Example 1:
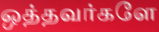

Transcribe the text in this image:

ஒத்தவர்களே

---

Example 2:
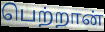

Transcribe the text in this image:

பெற்றான்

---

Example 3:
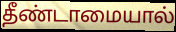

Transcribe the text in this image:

தீண்டாமையால்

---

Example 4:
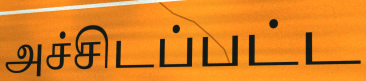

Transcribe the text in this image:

அச்சிடப்பட்ட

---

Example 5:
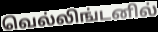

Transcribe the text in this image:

வெல்லிங்டனில்